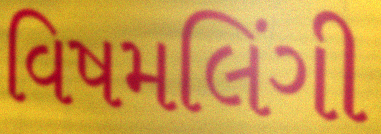
વિષમલિંગી